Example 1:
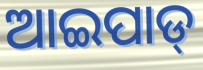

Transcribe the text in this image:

ଆଇପାଡ୍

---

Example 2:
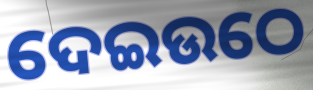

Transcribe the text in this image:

ଦେଇଉଠେ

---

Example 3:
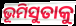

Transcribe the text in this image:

ଭୂମିସୁତାକୁ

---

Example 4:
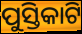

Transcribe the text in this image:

ପୁସ୍ତିକାଟି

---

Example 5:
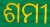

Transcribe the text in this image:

ଶମୀ